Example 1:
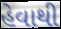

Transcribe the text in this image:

હેવાથી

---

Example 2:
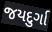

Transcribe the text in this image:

જયદુર્ગા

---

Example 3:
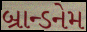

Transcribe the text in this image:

બ્રાન્ડનેમ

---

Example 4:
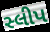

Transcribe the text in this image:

સ્લીપ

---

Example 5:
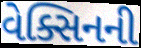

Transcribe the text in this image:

વેક્સિનની